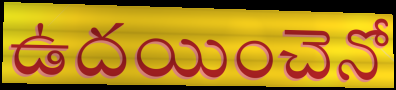
ఉదయించెనో